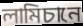
লামিচানে